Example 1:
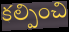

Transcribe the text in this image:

కల్పించి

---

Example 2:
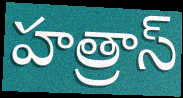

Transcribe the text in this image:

హత్రాస్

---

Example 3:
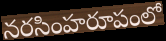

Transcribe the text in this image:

నరసింహరూపంలో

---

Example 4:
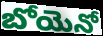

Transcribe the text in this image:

బోయెనో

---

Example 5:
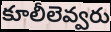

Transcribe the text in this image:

కూలీలెవ్వరు